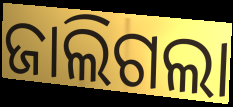
ଜାଲିଗଲା